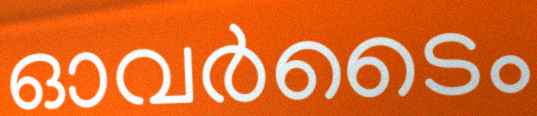
ഓവർടൈം